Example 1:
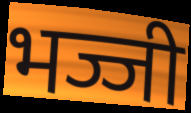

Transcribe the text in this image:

भज्जी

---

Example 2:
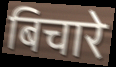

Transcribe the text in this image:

बिचारे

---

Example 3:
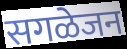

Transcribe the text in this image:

सगळेजन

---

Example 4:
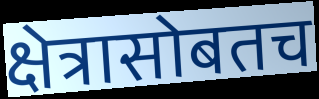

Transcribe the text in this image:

क्षेत्रासोबतच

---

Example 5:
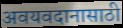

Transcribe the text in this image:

अवयवदानासाठी